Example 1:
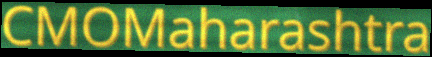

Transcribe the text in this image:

CMOMaharashtra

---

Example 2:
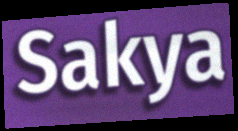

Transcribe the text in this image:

Sakya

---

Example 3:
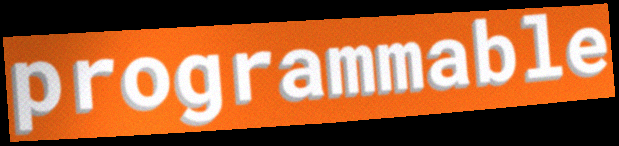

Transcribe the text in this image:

programmable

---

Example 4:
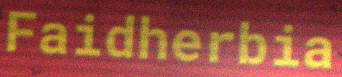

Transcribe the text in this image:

Faidherbia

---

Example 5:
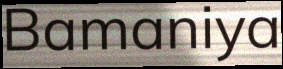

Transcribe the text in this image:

Bamaniya